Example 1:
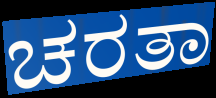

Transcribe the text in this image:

ಚರತಾ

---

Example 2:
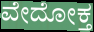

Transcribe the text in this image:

ವೇದೋಕ್ತ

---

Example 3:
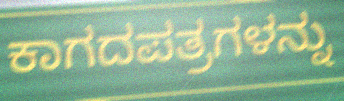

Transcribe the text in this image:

ಕಾಗದಪತ್ರಗಳನ್ನು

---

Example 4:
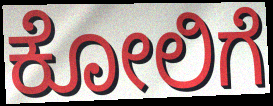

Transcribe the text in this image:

ಕೋಲಿಗೆ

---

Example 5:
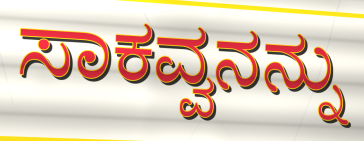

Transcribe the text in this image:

ಸಾಕವ್ವನನ್ನು